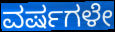
ವರ್ಷಗಳೇ